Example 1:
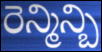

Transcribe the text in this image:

రెన్మిన్బి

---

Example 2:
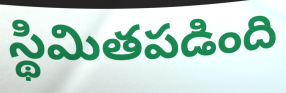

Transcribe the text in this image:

స్థిమితపడింది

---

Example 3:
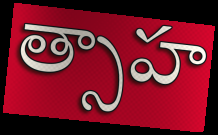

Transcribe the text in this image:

త్సాహ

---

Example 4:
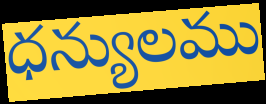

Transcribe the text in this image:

ధన్యులము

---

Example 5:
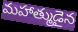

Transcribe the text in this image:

మహాత్ముడైన